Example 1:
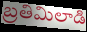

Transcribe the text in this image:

బ్రతిమిలాడి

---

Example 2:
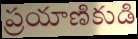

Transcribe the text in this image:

ప్రయాణికుడి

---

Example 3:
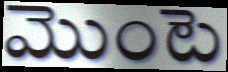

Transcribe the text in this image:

మొంటె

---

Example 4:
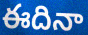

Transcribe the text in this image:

ఈదినా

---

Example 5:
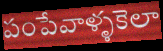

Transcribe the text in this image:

పంపేవాళ్ళకెలా